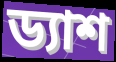
ড্যাশ